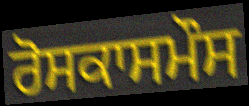
ਰੋਸਕਾਸਮੌਸ